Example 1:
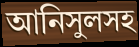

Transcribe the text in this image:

আনিসুলসহ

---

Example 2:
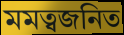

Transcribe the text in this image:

মমত্বজনিত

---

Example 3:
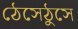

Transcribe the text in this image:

ঠেসেঠুসে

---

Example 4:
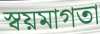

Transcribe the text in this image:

স্বয়মাগতা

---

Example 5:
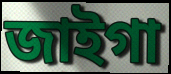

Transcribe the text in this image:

জাইগা